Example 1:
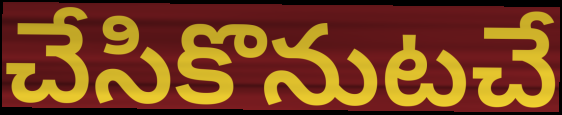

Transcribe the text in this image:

చేసికొనుటచే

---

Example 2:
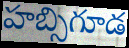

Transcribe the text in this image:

హబ్సిగూడ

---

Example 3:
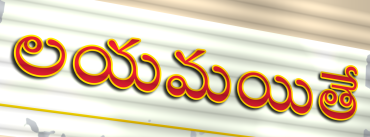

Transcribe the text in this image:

లయమయితే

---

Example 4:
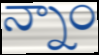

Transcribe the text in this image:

న్నాం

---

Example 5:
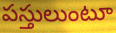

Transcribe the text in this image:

పస్తులుంటూ